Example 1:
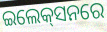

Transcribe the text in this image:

ଇଲେକ୍‍ସନରେ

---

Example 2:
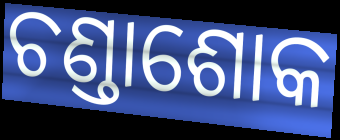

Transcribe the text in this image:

ଚଣ୍ଡାଶୋକ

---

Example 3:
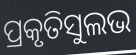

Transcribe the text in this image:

ପ୍ରକୃତିସୁଲଭ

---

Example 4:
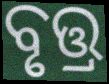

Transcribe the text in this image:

ବୃତ୍ତ୍ର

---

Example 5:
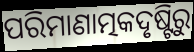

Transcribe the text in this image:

ପରିମାଣାତ୍ମକଦୃଷ୍ଟିରୁ